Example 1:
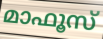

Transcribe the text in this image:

മാഫൂസ്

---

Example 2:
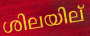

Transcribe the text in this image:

ശിലയില്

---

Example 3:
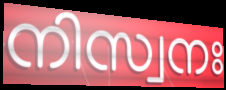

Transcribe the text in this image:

നിസ്വനഃ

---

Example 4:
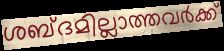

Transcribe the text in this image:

ശബ്ദമില്ലാത്തവർക്ക്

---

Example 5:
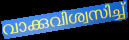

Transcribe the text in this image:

വാക്കുവിശ്വസിച്ച്